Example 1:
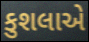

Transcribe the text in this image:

કુશલાએ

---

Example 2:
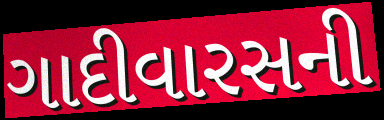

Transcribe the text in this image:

ગાદીવારસની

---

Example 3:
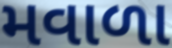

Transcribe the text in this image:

મવાળા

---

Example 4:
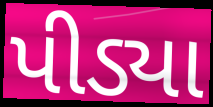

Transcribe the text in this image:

પીડ્યા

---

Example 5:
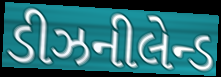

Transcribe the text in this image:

ડીઝનીલેન્ડ